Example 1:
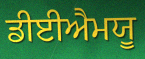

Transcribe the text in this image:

ਡੀਈਐਮਯੂ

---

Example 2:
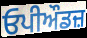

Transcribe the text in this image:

ਓਪੀਔਡਜ਼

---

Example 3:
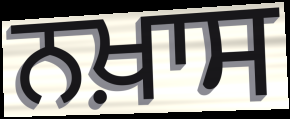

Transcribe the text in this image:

ਨਖ਼ਾਸ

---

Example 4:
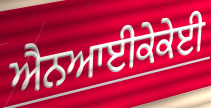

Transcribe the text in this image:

ਐਨਆਈਕੇਕੇਈ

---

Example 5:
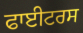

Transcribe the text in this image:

ਫਾਈਟਰਸ